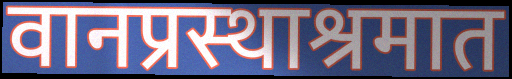
वानप्रस्थाश्रमात